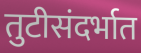
तुटीसंदर्भात